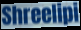
Shreelipi